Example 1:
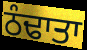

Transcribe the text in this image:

ਠੰਢਾਤਾ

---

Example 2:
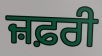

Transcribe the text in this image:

ਜ਼ਫ਼ਰੀ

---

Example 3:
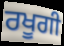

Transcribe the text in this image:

ਰਖੂਗੀ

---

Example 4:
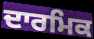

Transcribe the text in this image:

ਦਾਰਮਿਕ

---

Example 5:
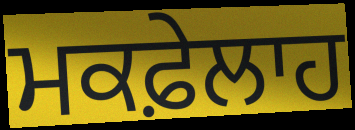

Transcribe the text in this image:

ਮਕਫ਼ੇਲਾਹ